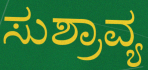
ಸುಶ್ರಾವ್ಯ